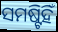
ସମଷ୍ଟିହିଁ